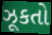
ઝૂકતો